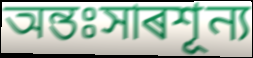
অন্তঃসাৰশূন্য